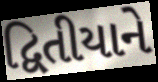
દ્વિતીયાને